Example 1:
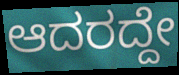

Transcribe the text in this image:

ಆದರದ್ದೇ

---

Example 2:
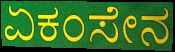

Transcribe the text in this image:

ಏಕಂಸೇನ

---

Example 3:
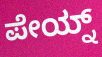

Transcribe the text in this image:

ಪೇಯ್ನ್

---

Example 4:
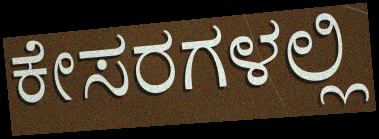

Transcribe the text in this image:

ಕೇಸರಗಳಲ್ಲಿ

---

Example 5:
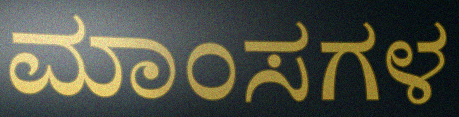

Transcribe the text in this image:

ಮಾಂಸಗಳ